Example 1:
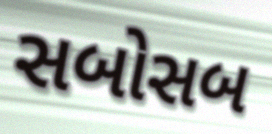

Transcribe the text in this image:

સબોસબ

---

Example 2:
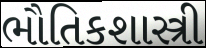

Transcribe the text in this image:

ભૌતિકશાસ્ત્રી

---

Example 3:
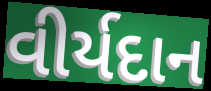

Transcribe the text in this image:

વીર્યદાન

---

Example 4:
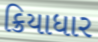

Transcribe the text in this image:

ક્રિયાધાર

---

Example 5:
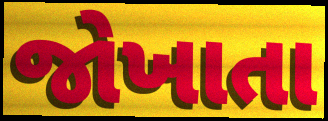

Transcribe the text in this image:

જોખાતા